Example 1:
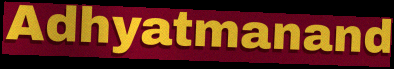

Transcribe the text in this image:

Adhyatmanand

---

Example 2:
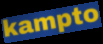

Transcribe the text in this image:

kampto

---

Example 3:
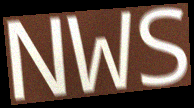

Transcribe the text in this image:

NWS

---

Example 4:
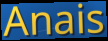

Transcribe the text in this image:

Anais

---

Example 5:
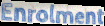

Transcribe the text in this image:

Enrolment